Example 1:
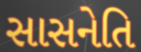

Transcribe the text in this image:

સાસનેતિ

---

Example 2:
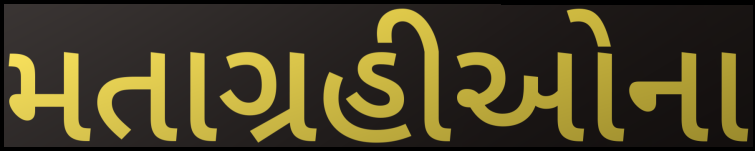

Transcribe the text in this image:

મતાગ્રહીઓના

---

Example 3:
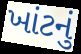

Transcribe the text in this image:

ખાંટનું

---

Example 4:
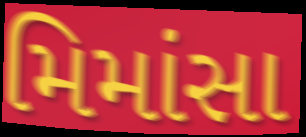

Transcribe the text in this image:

મિમાંસા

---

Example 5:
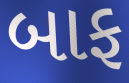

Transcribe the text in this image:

બાફ